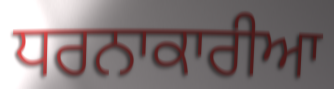
ਧਰਨਾਕਾਰੀਆ